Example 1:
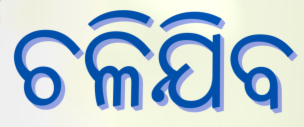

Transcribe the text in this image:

ଚଳିଯିବ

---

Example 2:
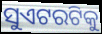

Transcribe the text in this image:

ସୁଏଟରଟିକୁ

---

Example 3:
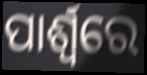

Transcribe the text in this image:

ପାର୍ଶ୍ଵରେ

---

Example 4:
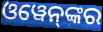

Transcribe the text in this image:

ଓୱେନ୍‌ଙ୍କର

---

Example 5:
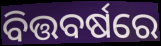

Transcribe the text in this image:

ବିତ୍ତବର୍ଷରେ